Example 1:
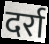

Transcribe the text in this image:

दर्रा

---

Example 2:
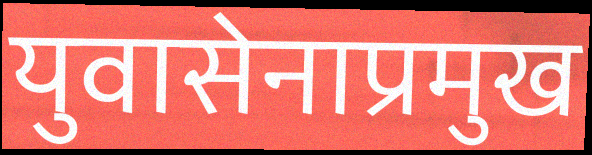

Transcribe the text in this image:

युवासेनाप्रमुख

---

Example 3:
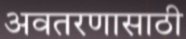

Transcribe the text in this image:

अवतरणासाठी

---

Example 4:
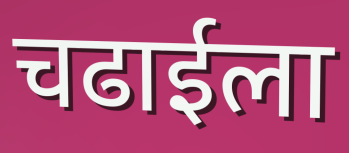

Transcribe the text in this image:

चढाईला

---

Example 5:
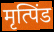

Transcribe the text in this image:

मृत्पिंड